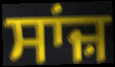
ਸਾਂਜ਼